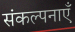
संकल्पनाएँ